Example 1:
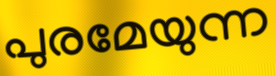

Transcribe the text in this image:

പുരമേയുന്ന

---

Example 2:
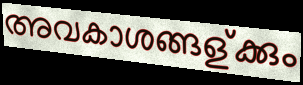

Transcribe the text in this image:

അവകാശങ്ങള്ക്കും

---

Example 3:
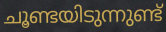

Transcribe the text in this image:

ചൂണ്ടയിടുന്നുണ്ട്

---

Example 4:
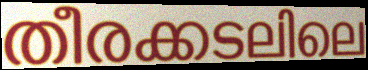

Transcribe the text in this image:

തീരക്കടലിലെ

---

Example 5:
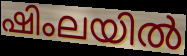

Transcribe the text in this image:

ഷിംലയിൽ